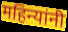
महिन्यांनी